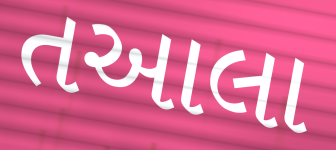
તઆલા